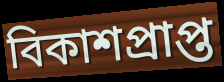
বিকাশপ্রাপ্ত